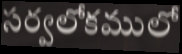
సర్వలోకములో